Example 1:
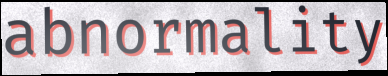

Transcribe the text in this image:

abnormality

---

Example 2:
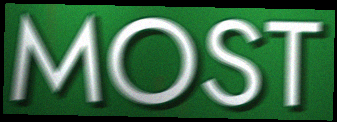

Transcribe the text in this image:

MOST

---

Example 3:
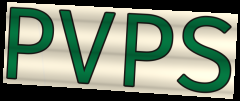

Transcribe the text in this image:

PVPS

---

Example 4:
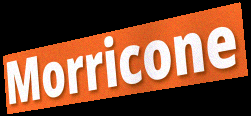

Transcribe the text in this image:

Morricone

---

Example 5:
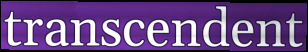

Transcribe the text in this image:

transcendent